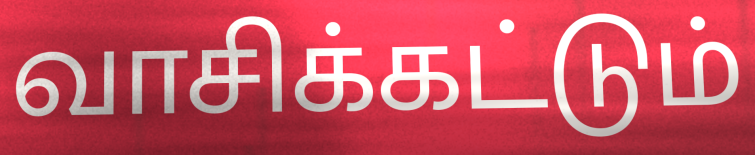
வாசிக்கட்டும்